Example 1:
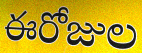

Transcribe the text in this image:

ఈరోజుల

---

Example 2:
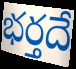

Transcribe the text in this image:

భర్తదే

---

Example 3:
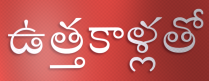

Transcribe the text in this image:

ఉత్తకాళ్లతో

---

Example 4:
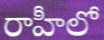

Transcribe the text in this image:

రాహీలో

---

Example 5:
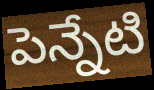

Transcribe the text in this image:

పెన్నేటి